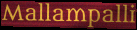
Mallampalli